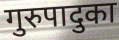
गुरुपादुका